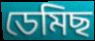
ডেমিছ